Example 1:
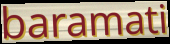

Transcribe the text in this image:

baramati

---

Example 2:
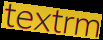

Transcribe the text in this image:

textrm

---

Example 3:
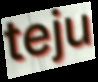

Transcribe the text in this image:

teju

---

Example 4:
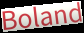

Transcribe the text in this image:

Boland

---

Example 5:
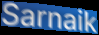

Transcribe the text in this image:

Sarnaik